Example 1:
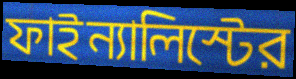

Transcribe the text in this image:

ফাইন্যালিস্টের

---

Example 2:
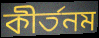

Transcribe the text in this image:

কীর্তনম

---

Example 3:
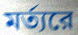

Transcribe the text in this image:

মর্ত্যরে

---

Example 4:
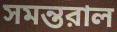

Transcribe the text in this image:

সমন্তরাল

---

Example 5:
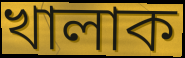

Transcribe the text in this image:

খালাক